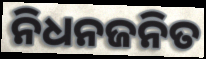
ନିଧନଜନିତ